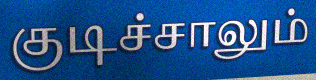
குடிச்சாலும்